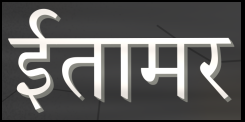
ईतामर